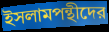
ইসলামপন্থীদের